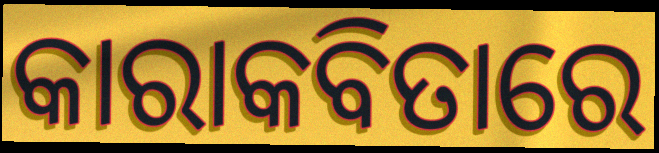
କାରାକବିତାରେ